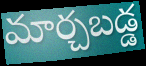
మార్చబడ్డ